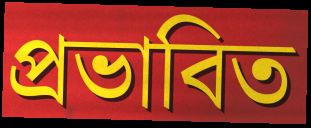
প্রভাবিত